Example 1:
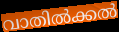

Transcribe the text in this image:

വാതിൽക്കൽ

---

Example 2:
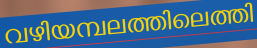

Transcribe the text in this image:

വഴിയമ്പലത്തിലെത്തി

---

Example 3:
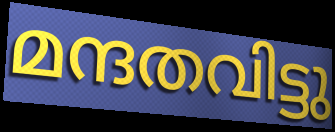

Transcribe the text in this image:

മന്ദതവിട്ടു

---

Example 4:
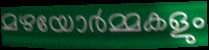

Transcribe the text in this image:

മഴയോർമ്മകളും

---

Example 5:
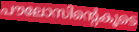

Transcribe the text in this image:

പൗലോസിന്റെകൂടെ